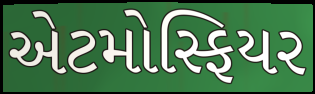
એટમોસ્ફિયર